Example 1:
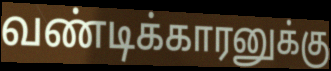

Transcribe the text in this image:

வண்டிக்காரனுக்கு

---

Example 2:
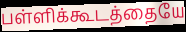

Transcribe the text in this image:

பள்ளிக்கூடத்தையே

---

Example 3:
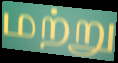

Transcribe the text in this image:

மற்று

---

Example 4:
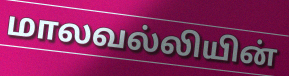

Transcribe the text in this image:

மாலவல்லியின்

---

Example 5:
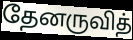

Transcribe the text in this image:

தேனருவித்